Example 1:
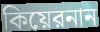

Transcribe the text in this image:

কিয়েরনান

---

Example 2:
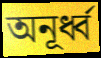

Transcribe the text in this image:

অনূর্ধ্ব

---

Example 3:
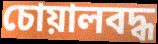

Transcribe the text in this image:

চোয়ালবদ্ধ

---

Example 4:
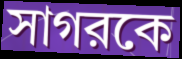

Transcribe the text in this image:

সাগরকে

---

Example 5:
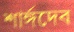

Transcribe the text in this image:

শার্ঙ্গদেব